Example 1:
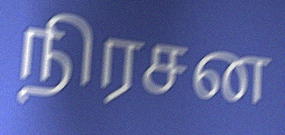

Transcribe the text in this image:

நிரசன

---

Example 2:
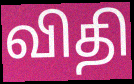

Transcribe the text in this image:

விதி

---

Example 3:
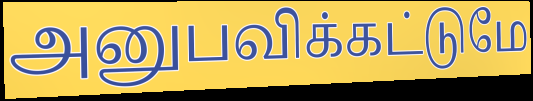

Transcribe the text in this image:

அனுபவிக்கட்டுமே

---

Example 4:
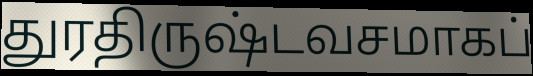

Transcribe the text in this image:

துரதிருஷ்டவசமாகப்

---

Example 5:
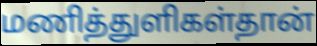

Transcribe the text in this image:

மணித்துளிகள்தான்